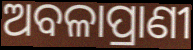
ଅବଳାପ୍ରାଣୀ